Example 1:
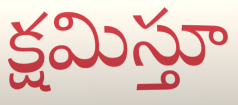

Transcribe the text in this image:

క్షమిస్తూ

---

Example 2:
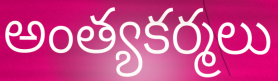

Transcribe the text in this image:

అంత్యకర్మలు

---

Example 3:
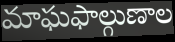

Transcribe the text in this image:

మాఘఫాల్గుణాల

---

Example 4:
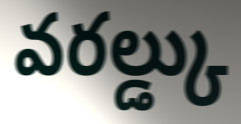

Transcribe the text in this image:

వరల్డ్కు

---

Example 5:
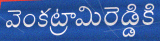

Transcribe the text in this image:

వెంకట్రామిరెడ్డికి